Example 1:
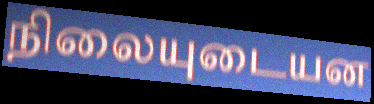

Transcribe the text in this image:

நிலையுடையன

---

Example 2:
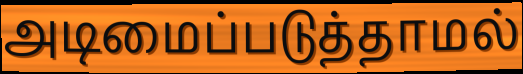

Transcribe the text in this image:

அடிமைப்படுத்தாமல்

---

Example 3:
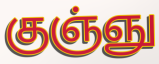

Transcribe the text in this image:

குஞ்ஞு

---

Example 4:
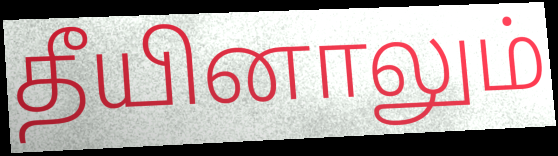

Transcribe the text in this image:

தீயினாலும்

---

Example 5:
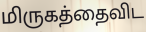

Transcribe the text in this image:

மிருகத்தைவிட